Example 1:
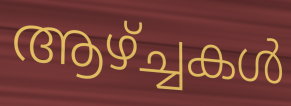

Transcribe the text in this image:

ആഴ്ച്ചകൾ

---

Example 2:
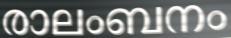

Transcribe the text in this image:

രാലംബനം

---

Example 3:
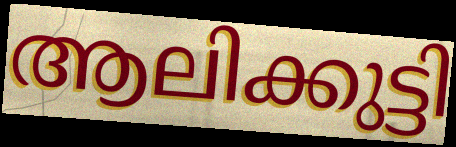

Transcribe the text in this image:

ആലിക്കുട്ടി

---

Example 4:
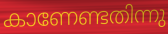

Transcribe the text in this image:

കാണേണ്ടതിന്നു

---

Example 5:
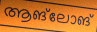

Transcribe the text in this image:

ആങ്‌ലോങ്